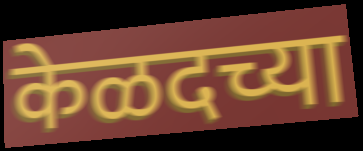
केळदच्या